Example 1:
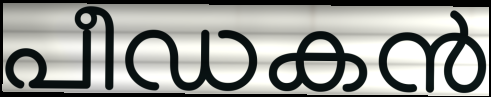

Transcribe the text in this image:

പീഡകൻ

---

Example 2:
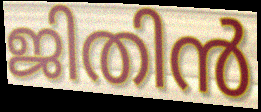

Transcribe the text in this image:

ജിതിൻ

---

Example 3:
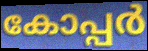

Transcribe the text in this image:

കോപ്പർ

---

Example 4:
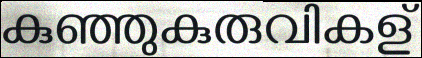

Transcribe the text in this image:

കുഞ്ഞുകുരുവികള്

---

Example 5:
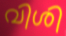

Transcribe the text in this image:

വിശി